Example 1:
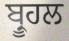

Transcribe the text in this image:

ਬ੍ਰੂਹਲ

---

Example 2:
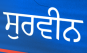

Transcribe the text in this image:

ਸੁਰਵੀਨ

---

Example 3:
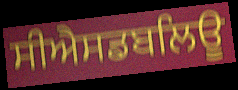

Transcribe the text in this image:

ਸੀਐਸਡਬਲਿਊ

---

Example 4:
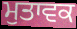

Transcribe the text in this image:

ਮੁਤਾਵਕ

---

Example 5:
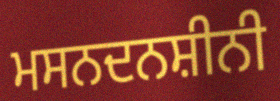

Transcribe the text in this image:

ਮਸਨਦਨਸ਼ੀਨੀ